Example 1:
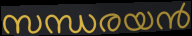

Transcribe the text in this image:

സന്ധരയൻ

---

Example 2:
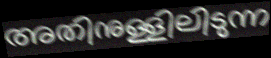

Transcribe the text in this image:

അതിനുള്ളിലിടുന്ന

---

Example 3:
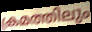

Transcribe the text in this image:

ക്രമത്തിലും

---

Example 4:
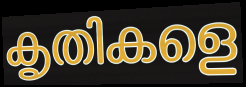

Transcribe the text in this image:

കൃതികളെ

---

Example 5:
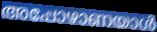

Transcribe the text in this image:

അപ്പോഴാണയാൾ